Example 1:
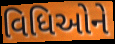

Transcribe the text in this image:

વિધિઓને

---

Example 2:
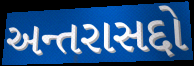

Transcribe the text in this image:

અન્તરાસદ્દો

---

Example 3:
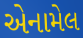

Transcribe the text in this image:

એનામેલ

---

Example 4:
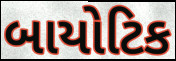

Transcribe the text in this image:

બાયોટિક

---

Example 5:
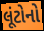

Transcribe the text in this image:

લૂંટોનો